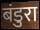
बंडुरा